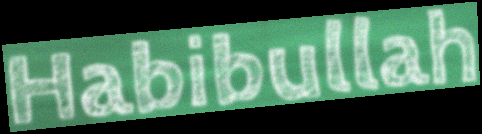
Habibullah